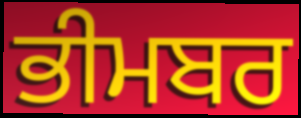
ਭੀਮਬਰ